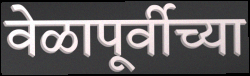
वेळापूर्वीच्या